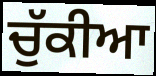
ਚੁੱਕੀਆ